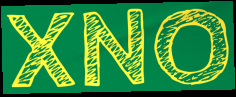
XNO